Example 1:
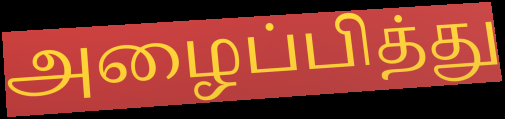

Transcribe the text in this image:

அழைப்பித்து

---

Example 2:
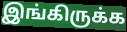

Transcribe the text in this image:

இங்கிருக்க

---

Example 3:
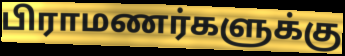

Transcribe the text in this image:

பிராமணர்களுக்கு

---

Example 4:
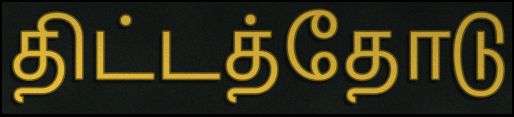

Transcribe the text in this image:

திட்டத்தோடு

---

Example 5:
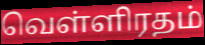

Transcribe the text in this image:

வெள்ளிரதம்